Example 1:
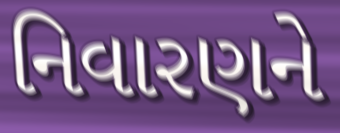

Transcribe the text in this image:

નિવારણને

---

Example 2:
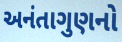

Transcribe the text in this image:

અનંતાગુણનો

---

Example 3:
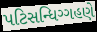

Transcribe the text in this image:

પટિસન્ધિગ્ગહણે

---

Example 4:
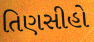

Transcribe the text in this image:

તિણસીહો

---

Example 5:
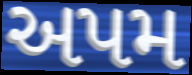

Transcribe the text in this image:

અપમ